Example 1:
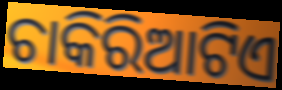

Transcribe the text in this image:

ଚାକିରିଆଟିଏ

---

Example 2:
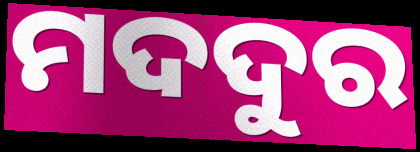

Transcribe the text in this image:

ମଦଦୁର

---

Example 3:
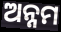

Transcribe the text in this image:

ଅନ୍ନମ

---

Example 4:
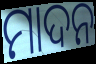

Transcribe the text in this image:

ମାଦନ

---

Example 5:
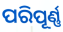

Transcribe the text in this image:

ପରିପୂର୍ଣ୍ଣ